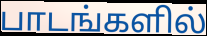
பாடங்களில்